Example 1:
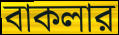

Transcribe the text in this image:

বাকলার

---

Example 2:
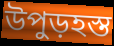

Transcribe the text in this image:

উপুড়হস্ত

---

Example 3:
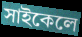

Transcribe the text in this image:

সাইকেলে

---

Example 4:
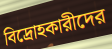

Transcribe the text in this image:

বিদ্রোহকারীদের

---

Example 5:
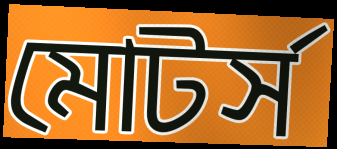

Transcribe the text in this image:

মোটর্স